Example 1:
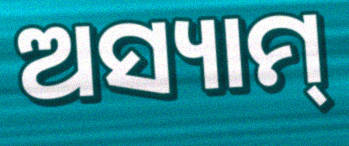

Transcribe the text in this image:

ଅସ୍ୟାମ୍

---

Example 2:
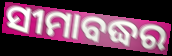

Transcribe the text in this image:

ସୀମାବଦ୍ଧର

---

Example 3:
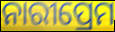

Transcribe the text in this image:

ନାରୀପ୍ରେମ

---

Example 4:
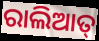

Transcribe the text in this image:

ରାଲିଆତ୍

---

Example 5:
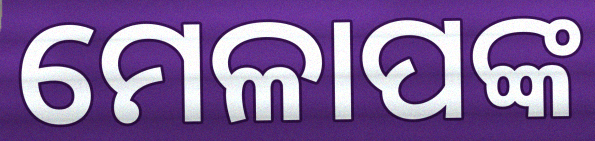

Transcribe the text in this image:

ମେଳାପଙ୍କ